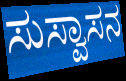
ಸುಸ್ವಾಸನ